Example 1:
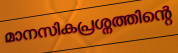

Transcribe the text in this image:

മാനസികപ്രശ്നത്തിന്റെ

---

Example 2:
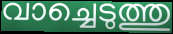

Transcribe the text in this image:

വാച്ചെടുത്തു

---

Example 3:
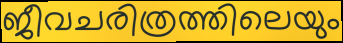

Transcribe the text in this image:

ജീവചരിത്രത്തിലെയും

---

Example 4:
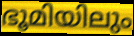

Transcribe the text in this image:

ഭൂമിയിലും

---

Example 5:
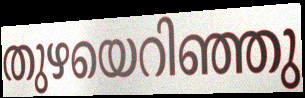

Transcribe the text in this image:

തുഴയെറിഞ്ഞു